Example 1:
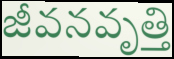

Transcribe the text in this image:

జీవనవృత్తి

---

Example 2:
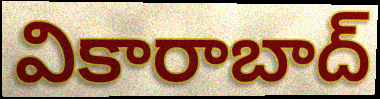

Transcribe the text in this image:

వికారాబాద్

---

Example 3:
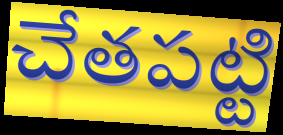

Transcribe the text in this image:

చేతపట్టి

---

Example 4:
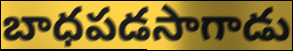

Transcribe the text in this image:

బాధపడసాగాడు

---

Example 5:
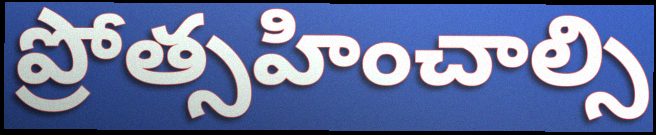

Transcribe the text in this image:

ప్రోత్సహించాల్సి